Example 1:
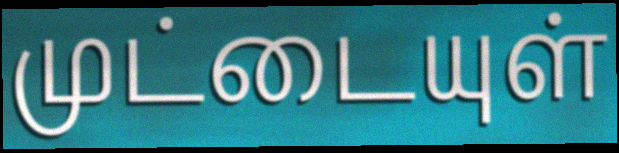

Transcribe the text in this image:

முட்டையுள்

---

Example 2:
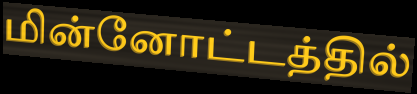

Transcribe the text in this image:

மின்னோட்டத்தில்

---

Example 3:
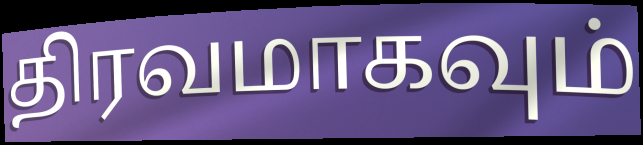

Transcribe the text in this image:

திரவமாகவும்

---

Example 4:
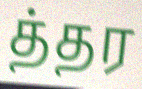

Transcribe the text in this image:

த்தர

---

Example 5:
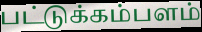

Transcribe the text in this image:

பட்டுக்கம்பளம்